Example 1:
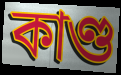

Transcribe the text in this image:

কাণ্ড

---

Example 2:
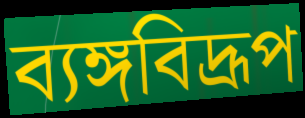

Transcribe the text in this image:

ব্যঙ্গবিদ্রূপ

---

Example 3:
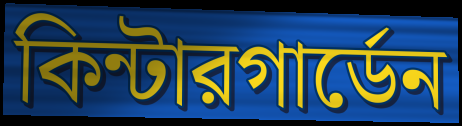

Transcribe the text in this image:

কিন্টারগার্ডেন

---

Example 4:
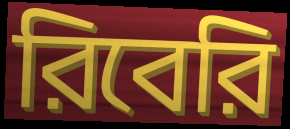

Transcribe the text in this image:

রিবেরি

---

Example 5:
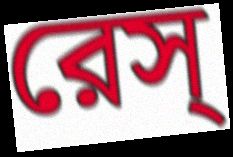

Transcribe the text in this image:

রেস্